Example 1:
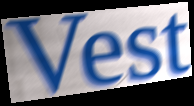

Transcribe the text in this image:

Vest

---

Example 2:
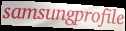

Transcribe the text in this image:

samsungprofile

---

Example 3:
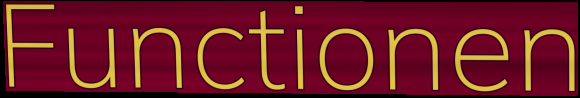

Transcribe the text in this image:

Functionen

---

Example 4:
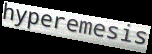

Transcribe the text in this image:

hyperemesis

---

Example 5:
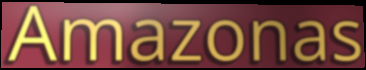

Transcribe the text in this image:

Amazonas